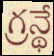
గ్రన్థే